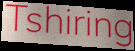
Tshiring